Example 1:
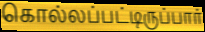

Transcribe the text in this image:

கொல்லப்பட்டிருப்பார்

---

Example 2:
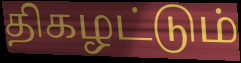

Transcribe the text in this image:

திகழட்டும்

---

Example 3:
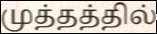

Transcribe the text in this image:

முத்தத்தில்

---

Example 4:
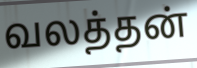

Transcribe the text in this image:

வலத்தன்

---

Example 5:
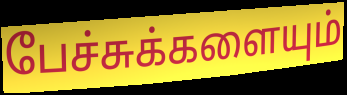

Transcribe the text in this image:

பேச்சுக்களையும்